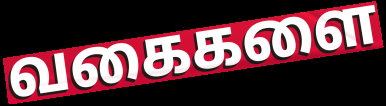
வகைகளை